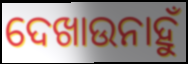
ଦେଖାଉନାହୁଁ